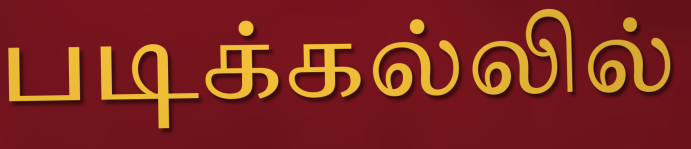
படிக்கல்லில்